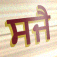
ਸਜੈ